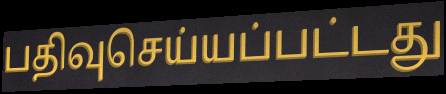
பதிவுசெய்யப்பட்டது